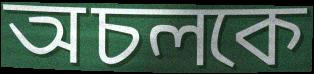
অচলকে